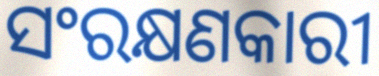
ସଂରକ୍ଷଣକାରୀ